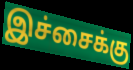
இச்சைக்கு